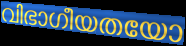
വിഭാഗീയതയോ